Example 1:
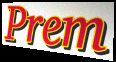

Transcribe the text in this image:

Prem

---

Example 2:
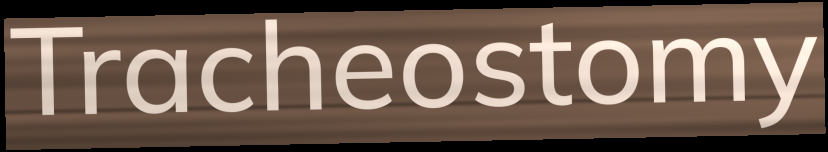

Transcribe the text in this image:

Tracheostomy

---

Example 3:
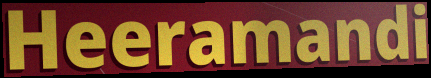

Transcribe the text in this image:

Heeramandi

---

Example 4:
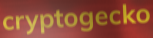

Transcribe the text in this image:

cryptogecko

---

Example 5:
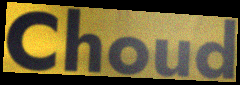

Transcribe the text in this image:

Choud